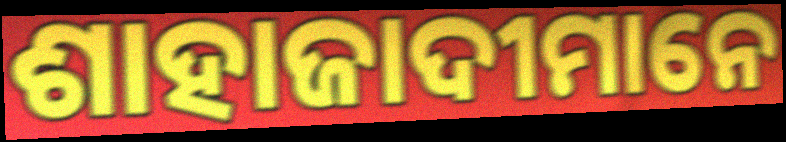
ଶାହାଜାଦୀମାନେ